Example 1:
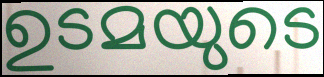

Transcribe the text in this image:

ഉടമയുടെ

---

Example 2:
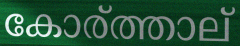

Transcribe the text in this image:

കോര്ത്താല്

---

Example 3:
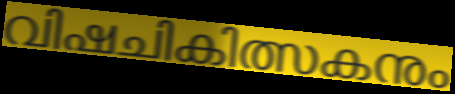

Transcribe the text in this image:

വിഷചികിത്സകനും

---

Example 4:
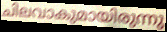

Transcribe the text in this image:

ചിലവാകുമായിരുന്നു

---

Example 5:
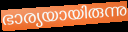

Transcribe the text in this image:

ഭാര്യയായിരുന്നു